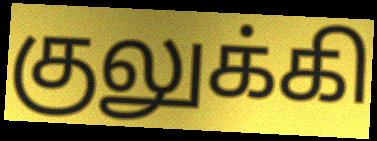
குலுக்கி